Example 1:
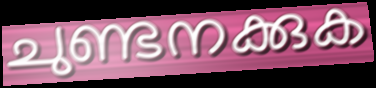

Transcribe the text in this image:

ചുണ്ടനക്കുക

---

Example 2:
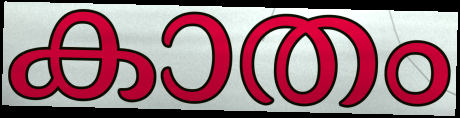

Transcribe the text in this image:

കാതം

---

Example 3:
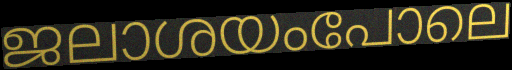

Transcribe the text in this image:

ജലാശയംപോലെ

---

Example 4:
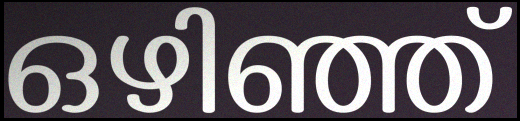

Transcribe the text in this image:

ഒഴിഞ്ഞ്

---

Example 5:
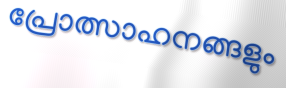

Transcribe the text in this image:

പ്രോത്സാഹനങ്ങളും